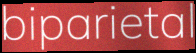
biparietal